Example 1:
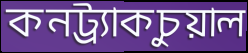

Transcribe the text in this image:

কনট্র্যাকচুয়াল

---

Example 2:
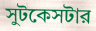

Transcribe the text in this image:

সুটকেসটার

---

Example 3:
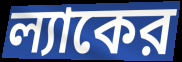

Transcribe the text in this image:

ল্যাকের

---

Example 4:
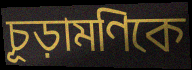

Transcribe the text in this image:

চূড়ামণিকে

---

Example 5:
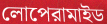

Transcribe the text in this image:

লোপেরামাইড